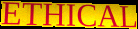
ETHICAL